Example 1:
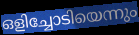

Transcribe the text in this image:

ഒളിച്ചോടിയെന്നും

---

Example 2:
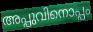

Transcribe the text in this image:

അപ്പുവിനൊപ്പം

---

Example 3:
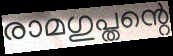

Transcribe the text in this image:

രാമഗുപ്തന്റെ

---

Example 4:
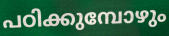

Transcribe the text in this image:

പഠിക്കുമ്പോഴും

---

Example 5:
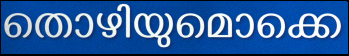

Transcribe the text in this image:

തൊഴിയുമൊക്കെ